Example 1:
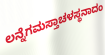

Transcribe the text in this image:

ಲನ್ನೆಗಮಸ್ತಾಚಳಸ್ಥನಾದಂ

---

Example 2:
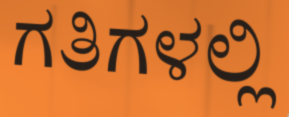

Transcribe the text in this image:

ಗತಿಗಳಲ್ಲಿ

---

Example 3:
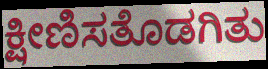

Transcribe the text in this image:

ಕ್ಷೀಣಿಸತೊಡಗಿತು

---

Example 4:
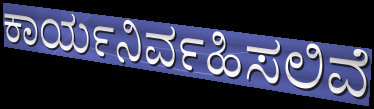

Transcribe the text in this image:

ಕಾರ್ಯನಿರ್ವಹಿಸಲಿವೆ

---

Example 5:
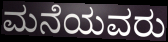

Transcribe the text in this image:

ಮನೆಯವರು